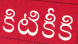
కిటికీకి